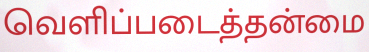
வெளிப்படைத்தன்மை